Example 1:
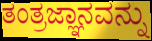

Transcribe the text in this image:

ತಂತ್ರಜ್ಞಾನವನ್ನು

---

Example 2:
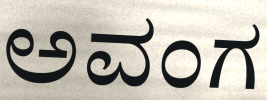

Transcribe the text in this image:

ಅವಂಗ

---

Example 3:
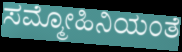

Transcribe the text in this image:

ಸಮ್ಮೋಹಿನಿಯಂತೆ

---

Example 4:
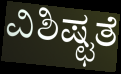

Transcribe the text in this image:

ವಿಶಿಷ್ಟತೆ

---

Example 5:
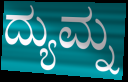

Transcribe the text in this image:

ದ್ಯುಮ್ನ